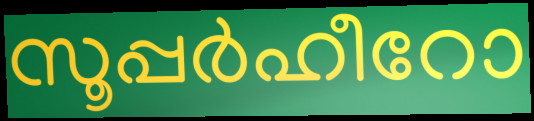
സൂപ്പർഹീറോ